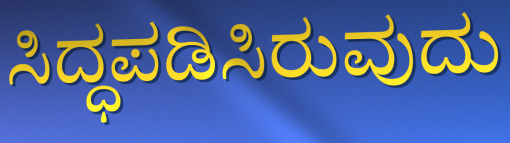
ಸಿದ್ಧಪಡಿಸಿರುವುದು